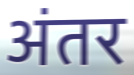
अंतर